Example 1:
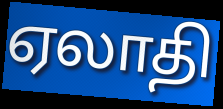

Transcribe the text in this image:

ஏலாதி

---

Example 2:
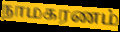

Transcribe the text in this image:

நாமகரணம்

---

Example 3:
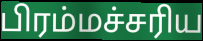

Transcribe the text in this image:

பிரம்மச்சரிய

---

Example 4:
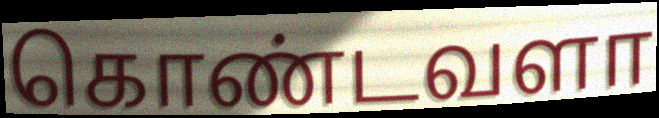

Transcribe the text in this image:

கொண்டவளா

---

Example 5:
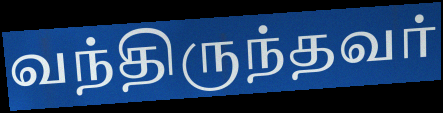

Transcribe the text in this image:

வந்திருந்தவர்